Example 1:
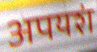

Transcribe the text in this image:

अपयशं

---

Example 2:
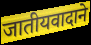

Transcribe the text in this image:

जातीयवादाने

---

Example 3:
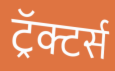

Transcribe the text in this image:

ट्रॅक्टर्स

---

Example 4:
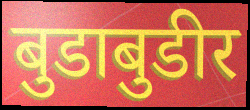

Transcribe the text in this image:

बुडाबुडीर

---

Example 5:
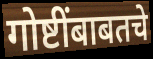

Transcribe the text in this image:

गोष्टींबाबतचे